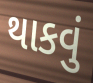
થાકવું